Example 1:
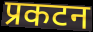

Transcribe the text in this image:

प्रकटन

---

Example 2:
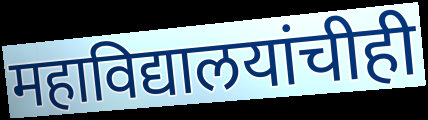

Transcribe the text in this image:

महाविद्यालयांचीही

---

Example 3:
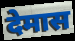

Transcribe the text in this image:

देमास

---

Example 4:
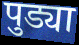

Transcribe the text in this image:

पुड्या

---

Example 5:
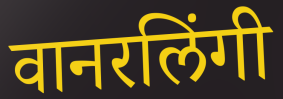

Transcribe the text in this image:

वानरलिंगी